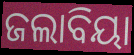
ଜଲାବିୟା